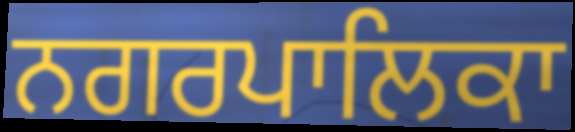
ਨਗਰਪਾਲਿਕਾ